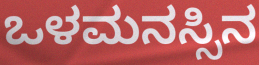
ಒಳಮನಸ್ಸಿನ